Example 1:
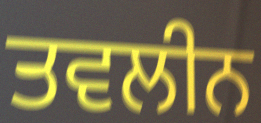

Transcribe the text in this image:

ਤਵਲੀਨ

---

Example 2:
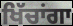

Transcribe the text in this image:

ਖਿੱਚਾਂਗਾ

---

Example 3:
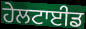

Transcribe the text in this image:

ਹੇਲਟਾਈਡ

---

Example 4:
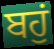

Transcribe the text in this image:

ਬਹੁਂ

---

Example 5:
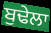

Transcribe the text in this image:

ਬੁਢੇਲਾ